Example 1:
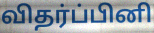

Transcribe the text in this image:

விதர்ப்பினி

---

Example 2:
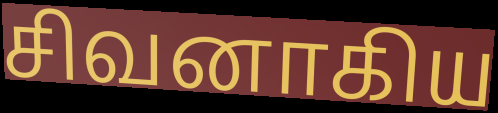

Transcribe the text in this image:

சிவனாகிய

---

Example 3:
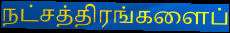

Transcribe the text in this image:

நட்சத்திரங்களைப்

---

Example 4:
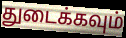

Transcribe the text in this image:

துடைக்கவும்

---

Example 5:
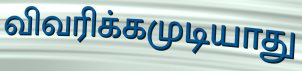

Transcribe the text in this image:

விவரிக்கமுடியாது